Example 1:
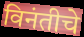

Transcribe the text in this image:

विनंतीचे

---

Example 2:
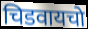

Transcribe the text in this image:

चिडवायचो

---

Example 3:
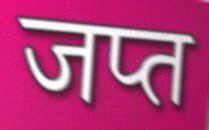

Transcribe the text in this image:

जप्त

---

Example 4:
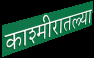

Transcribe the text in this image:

काश्मीरातल्या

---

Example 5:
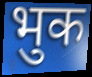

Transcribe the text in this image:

भुक